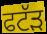
ਫਟੱੜ